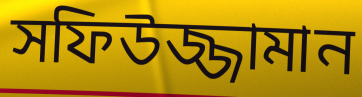
সফিউজ্জামান